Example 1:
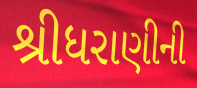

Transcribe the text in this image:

શ્રીધરાણીની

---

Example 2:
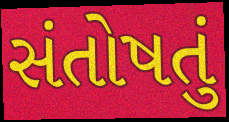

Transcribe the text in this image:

સંતોષતું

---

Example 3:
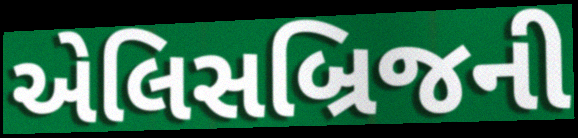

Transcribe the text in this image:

એલિસબ્રિજની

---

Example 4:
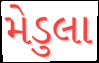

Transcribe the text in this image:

મેડુલા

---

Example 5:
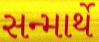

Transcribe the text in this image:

સન્માર્થે